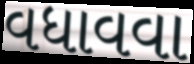
વધાવવા